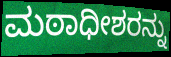
ಮಠಾಧೀಶರನ್ನು